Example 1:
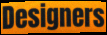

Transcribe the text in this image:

Designers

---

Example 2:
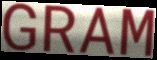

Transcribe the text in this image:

GRAM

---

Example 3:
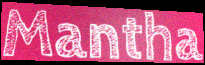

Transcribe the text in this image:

Mantha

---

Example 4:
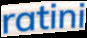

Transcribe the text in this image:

ratini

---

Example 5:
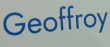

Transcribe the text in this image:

Geoffroy